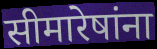
सीमारेषांना